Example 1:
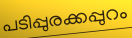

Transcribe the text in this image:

പടിപ്പുരക്കപ്പുറം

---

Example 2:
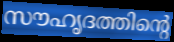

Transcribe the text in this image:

സൗഹൃദത്തിന്റെ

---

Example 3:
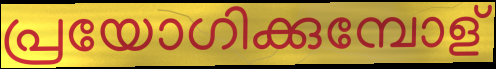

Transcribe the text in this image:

പ്രയോഗിക്കുമ്പോള്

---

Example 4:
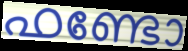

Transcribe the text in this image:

ഫണ്ടോ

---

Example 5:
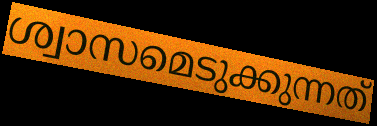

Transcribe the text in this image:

ശ്വാസമെടുക്കുന്നത്